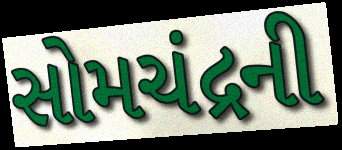
સોમચંદ્રની